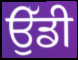
ਉੱਡੀ